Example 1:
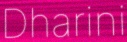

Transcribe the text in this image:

Dharini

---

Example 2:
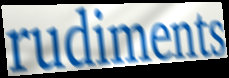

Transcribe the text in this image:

rudiments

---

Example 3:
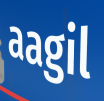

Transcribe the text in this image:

aagil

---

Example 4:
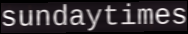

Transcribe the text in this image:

sundaytimes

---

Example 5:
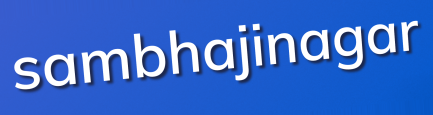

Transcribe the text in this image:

sambhajinagar